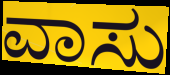
ವಾಸು